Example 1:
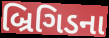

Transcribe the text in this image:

બ્રિગિડના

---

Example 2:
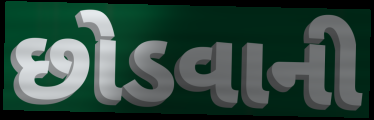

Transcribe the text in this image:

છોડવાની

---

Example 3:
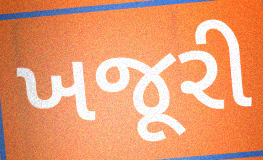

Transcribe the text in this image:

ખજૂરી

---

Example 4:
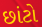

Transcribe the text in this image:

છાંટો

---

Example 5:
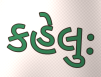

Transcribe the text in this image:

કહેલુઃ